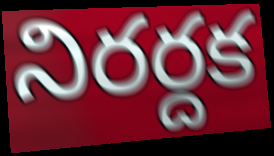
నిరర్దక